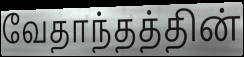
வேதாந்தத்தின்